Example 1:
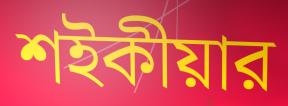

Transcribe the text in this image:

শইকীয়ার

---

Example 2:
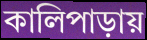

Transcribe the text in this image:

কালিপাড়ায়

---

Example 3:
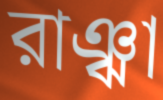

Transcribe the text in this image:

রাঞ্ঝা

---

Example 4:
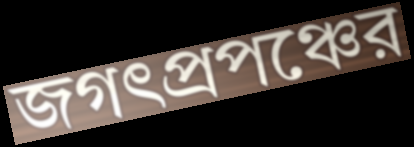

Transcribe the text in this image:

জগৎপ্রপঞ্চের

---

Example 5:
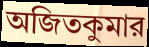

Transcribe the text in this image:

অজিতকুমার